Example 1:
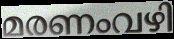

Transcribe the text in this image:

മരണംവഴി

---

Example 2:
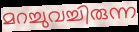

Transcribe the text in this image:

മറച്ചുവച്ചിരുന്ന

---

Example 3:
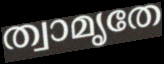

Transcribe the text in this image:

ത്വാമൃതേ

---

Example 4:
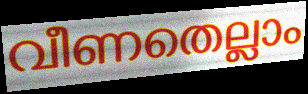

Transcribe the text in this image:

വീണതെല്ലാം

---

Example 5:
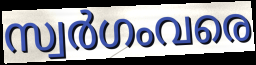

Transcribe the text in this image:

സ്വർഗംവരെ